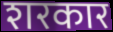
शरकार